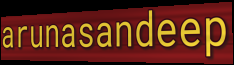
arunasandeep